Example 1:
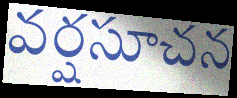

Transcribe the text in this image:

వర్షసూచన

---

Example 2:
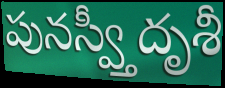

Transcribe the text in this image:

పునస్వ్తీదృశీ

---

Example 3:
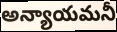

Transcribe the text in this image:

అన్యాయమనీ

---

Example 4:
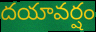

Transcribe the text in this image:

దయావర్షం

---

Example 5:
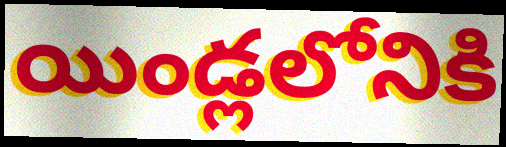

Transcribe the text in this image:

యిండ్లలోనికి